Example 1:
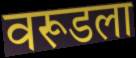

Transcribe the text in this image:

वरूडला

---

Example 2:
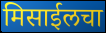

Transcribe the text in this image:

मिसाईलचा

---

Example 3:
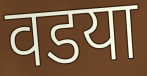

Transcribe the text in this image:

वडया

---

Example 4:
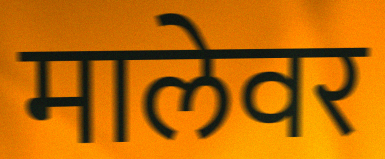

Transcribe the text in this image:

मालेवर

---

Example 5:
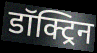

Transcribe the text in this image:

डॉक्ट्रिन